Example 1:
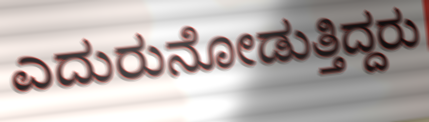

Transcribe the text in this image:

ಎದುರುನೋಡುತ್ತಿದ್ದರು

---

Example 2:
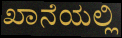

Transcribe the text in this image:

ಖಾನೆಯಲ್ಲಿ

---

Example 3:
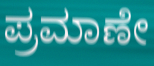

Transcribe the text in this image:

ಪ್ರಮಾಣೇ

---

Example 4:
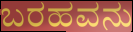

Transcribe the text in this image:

ಬರಹವನು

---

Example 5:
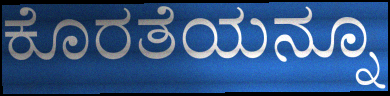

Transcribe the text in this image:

ಕೊರತೆಯನ್ನೂ